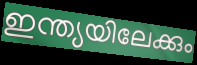
ഇന്ത്യയിലേക്കും